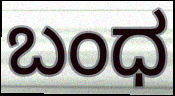
ಬಂಧ